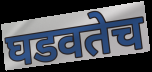
घडवतेच